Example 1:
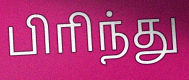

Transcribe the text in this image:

பிரிந்து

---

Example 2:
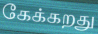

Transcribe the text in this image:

கேக்கறது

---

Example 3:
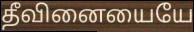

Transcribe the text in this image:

தீவினையையே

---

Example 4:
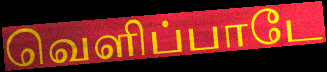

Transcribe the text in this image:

வெளிப்பாடே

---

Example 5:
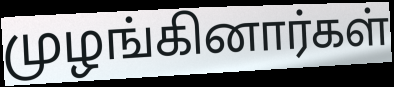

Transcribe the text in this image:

முழங்கினார்கள்